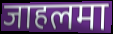
जाहलमा